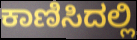
ಕಾಣಿಸಿದಲ್ಲಿ